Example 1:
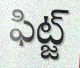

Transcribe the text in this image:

ఫిట్జ్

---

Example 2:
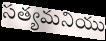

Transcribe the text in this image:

సత్యమనియు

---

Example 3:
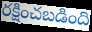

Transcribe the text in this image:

రక్షించబడింది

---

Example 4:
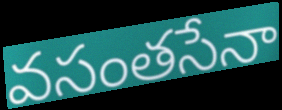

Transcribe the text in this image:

వసంతసేనా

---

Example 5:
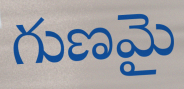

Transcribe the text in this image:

గుణమై